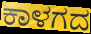
ಕಾಳಗದ